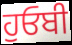
ਹੁਓਬੀ